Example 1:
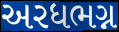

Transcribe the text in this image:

અરધભગ્ન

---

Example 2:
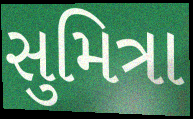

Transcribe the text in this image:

સુમિત્રા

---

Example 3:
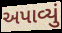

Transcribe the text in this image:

અપાવ્યું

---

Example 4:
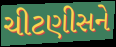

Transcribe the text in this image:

ચીટણીસને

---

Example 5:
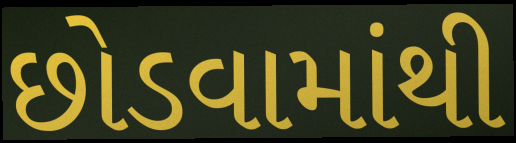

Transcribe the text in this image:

છોડવામાંથી